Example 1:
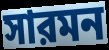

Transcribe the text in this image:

সারমন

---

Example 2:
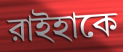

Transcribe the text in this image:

রাইহাকে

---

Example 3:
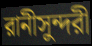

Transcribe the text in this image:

রানীসুন্দরী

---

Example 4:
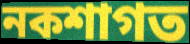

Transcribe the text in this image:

নকশাগত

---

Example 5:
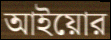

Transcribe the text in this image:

আইয়োর